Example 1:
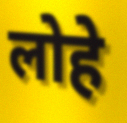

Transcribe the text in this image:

लोहे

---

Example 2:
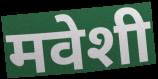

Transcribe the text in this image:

मवेशी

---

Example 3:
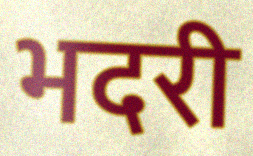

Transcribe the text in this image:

भदरी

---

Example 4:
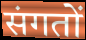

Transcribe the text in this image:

संगतों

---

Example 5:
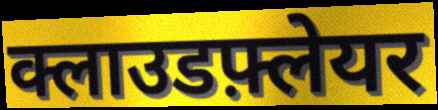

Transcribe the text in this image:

क्लाउडफ़्लेयर